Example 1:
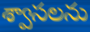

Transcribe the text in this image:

శ్వాసలను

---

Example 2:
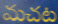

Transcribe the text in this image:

మచట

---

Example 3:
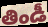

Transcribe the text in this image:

తిండీ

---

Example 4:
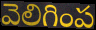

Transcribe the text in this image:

వెలిగింప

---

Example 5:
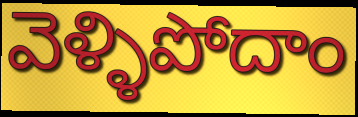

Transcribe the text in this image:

వెళ్ళిపోదాం